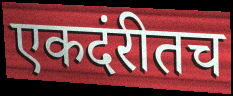
एकदंरीतच